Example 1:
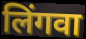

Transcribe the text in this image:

लिंगवा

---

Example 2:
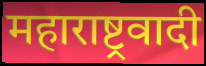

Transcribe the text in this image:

महाराष्ट्रवादी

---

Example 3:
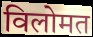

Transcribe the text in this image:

विलोमत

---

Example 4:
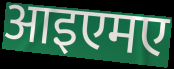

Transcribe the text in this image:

आइएमए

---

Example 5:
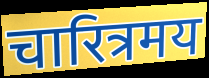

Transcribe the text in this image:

चारित्रमय